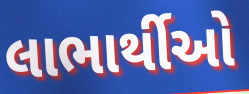
લાભાર્થીઓ